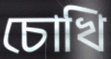
চোখি